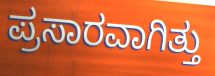
ಪ್ರಸಾರವಾಗಿತ್ತು